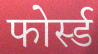
फोर्स्ड